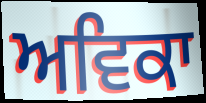
ਅਵਿਕਾ